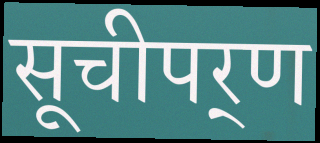
सूचीपर्ण